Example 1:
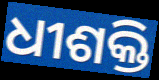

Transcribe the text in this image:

ଧୀଶକ୍ତି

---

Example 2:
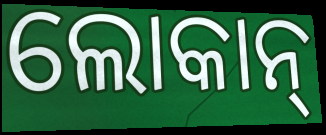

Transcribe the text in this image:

ଲୋକାନ୍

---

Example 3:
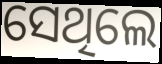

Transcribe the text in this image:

ସେଥିଲେ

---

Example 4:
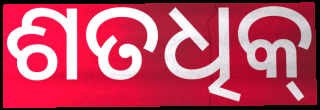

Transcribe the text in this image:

ଶତଧିକ୍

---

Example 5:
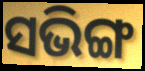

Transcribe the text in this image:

ସଭିଙ୍ଗ